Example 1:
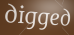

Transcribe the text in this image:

digged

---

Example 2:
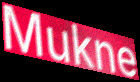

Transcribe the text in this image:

Mukne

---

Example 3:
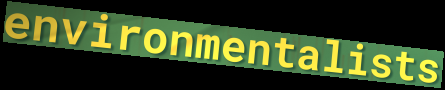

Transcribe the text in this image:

environmentalists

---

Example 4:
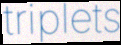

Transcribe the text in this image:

triplets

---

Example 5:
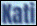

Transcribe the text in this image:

Kati